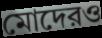
মোদেরও